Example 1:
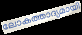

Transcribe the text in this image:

ലോകത്താദ്യമായി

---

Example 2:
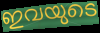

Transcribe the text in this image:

ഇവയുടെ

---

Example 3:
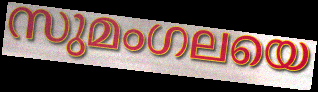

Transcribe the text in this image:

സുമംഗലയെ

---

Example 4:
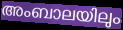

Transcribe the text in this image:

അംബാലയിലും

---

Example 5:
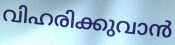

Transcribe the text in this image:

വിഹരിക്കുവാൻ